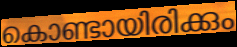
കൊണ്ടായിരിക്കും